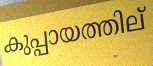
കുപ്പായത്തില്